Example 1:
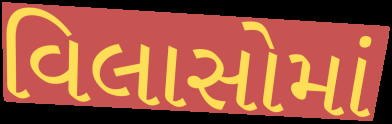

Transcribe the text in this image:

વિલાસોમાં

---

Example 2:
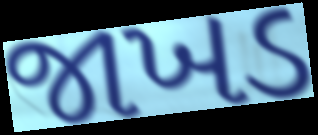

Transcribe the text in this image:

જાખડ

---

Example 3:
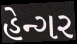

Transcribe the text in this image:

હેન્ગર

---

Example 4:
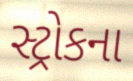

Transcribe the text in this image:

સ્ટ્રોકના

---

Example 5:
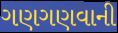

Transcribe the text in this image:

ગણગણવાની